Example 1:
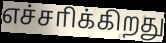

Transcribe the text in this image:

எச்சரிக்கிறது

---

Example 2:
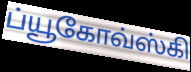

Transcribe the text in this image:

ப்யூகோவ்ஸ்கி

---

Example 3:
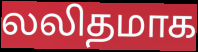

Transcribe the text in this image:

லலிதமாக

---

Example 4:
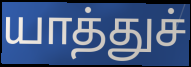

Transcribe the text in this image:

யாத்துச்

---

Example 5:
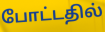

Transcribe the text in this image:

போட்டதில்